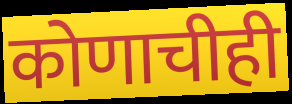
कोणाचीही